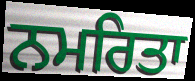
ਨਮਰਿਤਾ